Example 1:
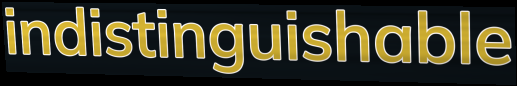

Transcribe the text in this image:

indistinguishable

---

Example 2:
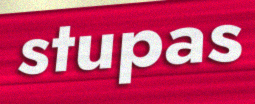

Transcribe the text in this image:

stupas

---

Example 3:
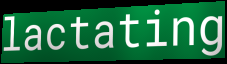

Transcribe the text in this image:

lactating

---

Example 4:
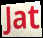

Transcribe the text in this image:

Jat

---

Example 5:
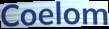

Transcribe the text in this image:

Coelom